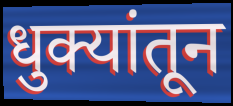
धुक्यांतून